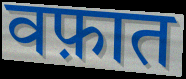
वफ़ात